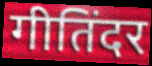
गीतिंदर